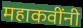
महाकवींनी